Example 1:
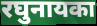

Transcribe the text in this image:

रघुनायका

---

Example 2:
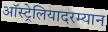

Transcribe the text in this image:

ऑस्ट्रेलियादरम्यान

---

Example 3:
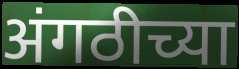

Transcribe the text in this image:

अंगठीच्या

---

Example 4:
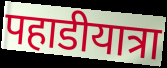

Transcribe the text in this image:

पहाडीयात्रा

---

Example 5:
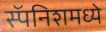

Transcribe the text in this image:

स्पॅनिशमध्ये